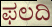
ಫಲದಿ